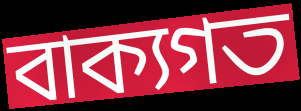
বাক্যগত